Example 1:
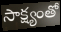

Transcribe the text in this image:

సాక్ష్యంతో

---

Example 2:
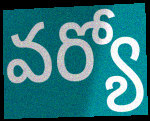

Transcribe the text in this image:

వర్యో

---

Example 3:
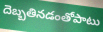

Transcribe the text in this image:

దెబ్బతినడంతోపాటు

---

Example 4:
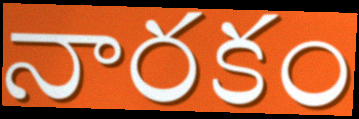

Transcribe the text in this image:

నారకం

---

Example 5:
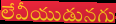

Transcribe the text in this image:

లేవీయుడునగు